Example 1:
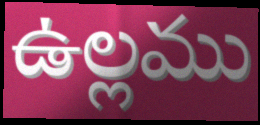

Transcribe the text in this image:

ఉల్లము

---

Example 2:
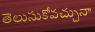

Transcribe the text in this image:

తెలుసుకోవచ్చునా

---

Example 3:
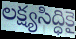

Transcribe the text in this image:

లక్ష్యసిద్ధికై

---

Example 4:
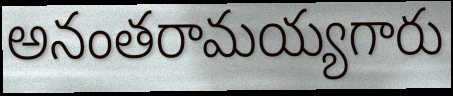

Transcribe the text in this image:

అనంతరామయ్యగారు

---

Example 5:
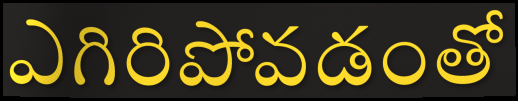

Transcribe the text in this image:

ఎగిరిపోవడంతో